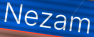
Nezam